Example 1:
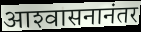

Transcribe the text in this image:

आश्वासनानंतर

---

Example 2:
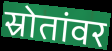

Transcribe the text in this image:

स्रोतांवर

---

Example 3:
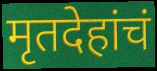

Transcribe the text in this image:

मृतदेहांचं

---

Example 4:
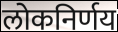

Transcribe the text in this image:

लोकनिर्णय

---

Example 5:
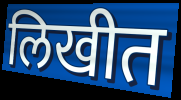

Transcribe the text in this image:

लिखीत